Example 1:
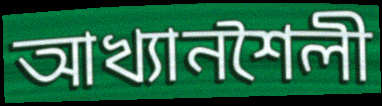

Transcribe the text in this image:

আখ্যানশৈলী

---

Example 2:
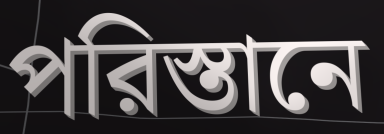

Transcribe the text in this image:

পরিস্তানে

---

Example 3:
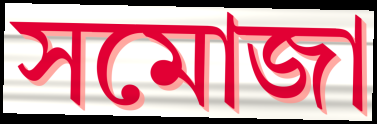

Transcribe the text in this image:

সমোজা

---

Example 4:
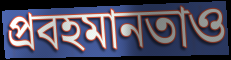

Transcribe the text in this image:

প্রবহমানতাও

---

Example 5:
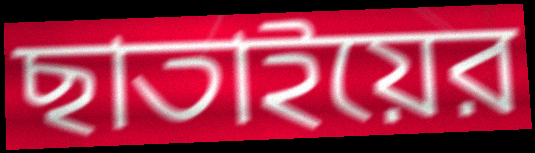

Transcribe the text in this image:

ছাতাইয়ের